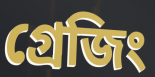
গ্রেজিং